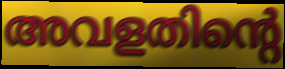
അവളതിന്റെ